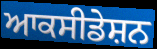
ਆਕਸੀਡੇਸ਼ਨ